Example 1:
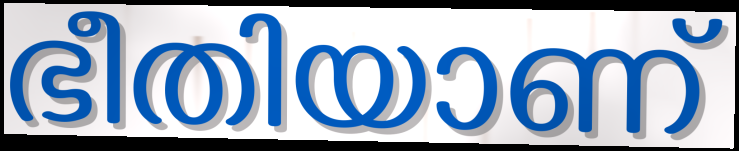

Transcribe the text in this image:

ഭീതിയാണ്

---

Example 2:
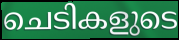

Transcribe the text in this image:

ചെടികളുടെ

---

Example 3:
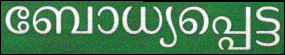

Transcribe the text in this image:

ബോധ്യപ്പെട്ട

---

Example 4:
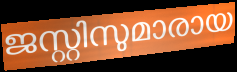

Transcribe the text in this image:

ജസ്റ്റിസുമാരായ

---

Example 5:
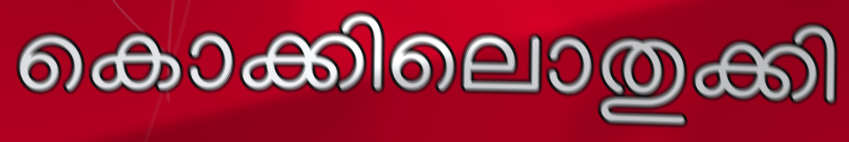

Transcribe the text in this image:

കൊക്കിലൊതുക്കി